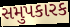
સમુપકારક